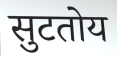
सुटतोय